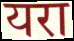
यरा